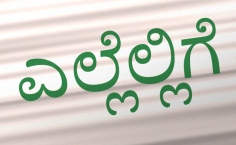
ಎಲ್ಲೆಲ್ಲಿಗೆ